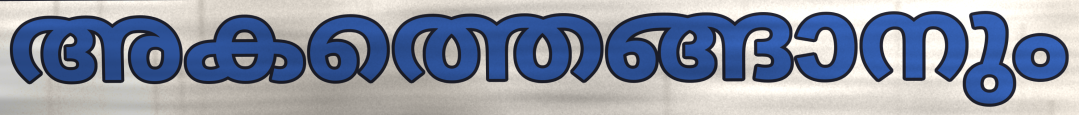
അകത്തെങ്ങാനും